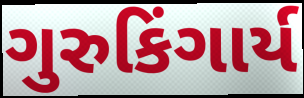
ગુરુકિંગાર્ય